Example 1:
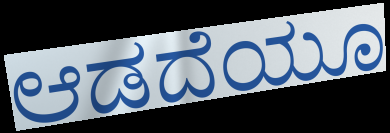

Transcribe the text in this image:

ಆಡದೆಯೂ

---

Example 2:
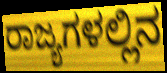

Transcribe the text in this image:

ರಾಜ್ಯಗಳಲ್ಲಿನ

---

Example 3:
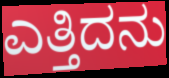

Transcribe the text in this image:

ಎತ್ತಿದನು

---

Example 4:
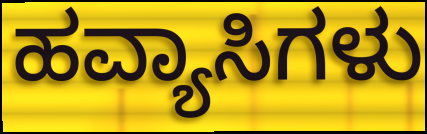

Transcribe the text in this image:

ಹವ್ಯಾಸಿಗಳು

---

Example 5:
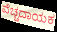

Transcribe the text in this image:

ವೆಚ್ಚದಾಯಕ